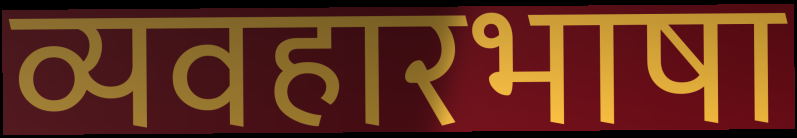
व्यवहारभाषा